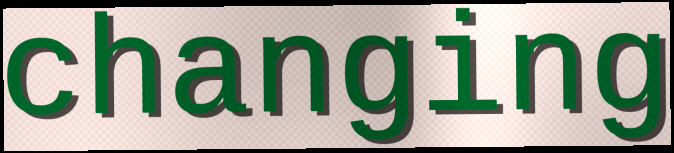
changing